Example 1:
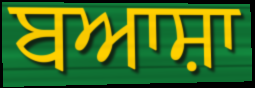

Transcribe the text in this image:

ਬਆਸ਼ਾ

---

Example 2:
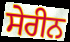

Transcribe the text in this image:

ਸੇਰੀਨ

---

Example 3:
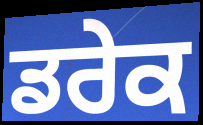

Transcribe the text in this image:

ਡਰੇਕ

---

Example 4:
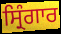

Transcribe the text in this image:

ਸ੍ਰਿੰਗਾਰ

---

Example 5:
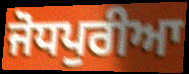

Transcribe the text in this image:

ਜੋਧਪੁਰੀਆ